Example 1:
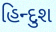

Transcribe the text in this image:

હિન્દુશ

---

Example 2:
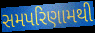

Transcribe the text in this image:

સમપરિણામથી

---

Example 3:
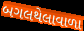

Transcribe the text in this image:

બગલથેલાવાળા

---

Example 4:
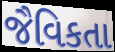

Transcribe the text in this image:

જૈવિકતા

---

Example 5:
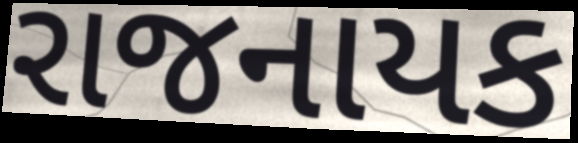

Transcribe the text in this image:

રાજનાયક